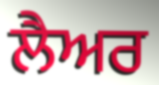
ਲੈਅਰ